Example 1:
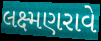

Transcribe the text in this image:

લક્ષ્મણરાવે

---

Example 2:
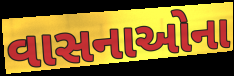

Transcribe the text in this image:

વાસનાઓના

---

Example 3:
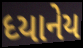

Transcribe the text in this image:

ધ્યાનેય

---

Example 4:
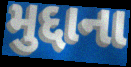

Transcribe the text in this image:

મુદ્દાના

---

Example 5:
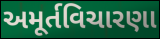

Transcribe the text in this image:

અમૂર્તવિચારણા